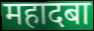
महादबा